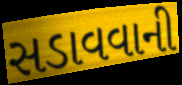
સડાવવાની